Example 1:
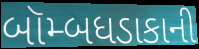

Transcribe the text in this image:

બૉમ્બધડાકાની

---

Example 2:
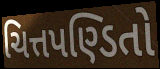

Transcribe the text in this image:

ચિત્તપણ્ડિતો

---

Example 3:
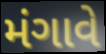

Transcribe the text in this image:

મંગાવે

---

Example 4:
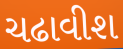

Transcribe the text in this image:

ચઢાવીશ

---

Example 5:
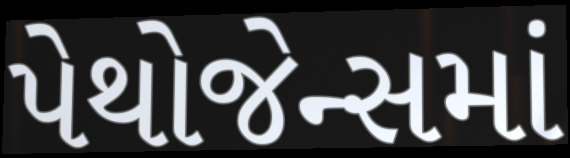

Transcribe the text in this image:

પેથોજેન્સમાં